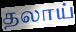
தலாய்